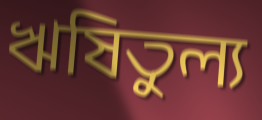
ঋষিতুল্য